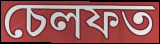
চেলফত